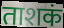
ताशकं